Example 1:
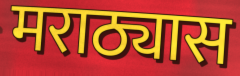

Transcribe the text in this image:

मराठ्यास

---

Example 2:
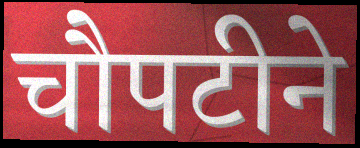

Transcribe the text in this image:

चौपटीने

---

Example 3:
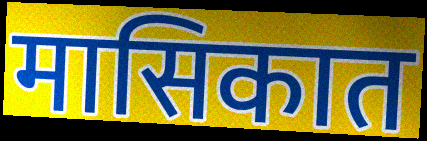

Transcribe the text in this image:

मासिकात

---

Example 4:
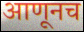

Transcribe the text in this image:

आणूनच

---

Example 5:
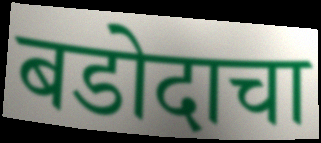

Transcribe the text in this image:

बडोदाचा